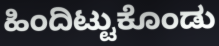
ಹಿಂದಿಟ್ಟುಕೊಂಡು